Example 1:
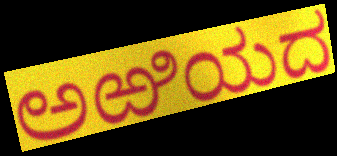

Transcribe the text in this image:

ಅಱಿಯದ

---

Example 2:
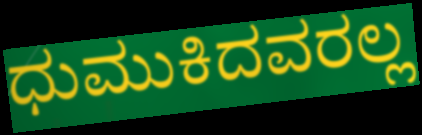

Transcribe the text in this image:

ಧುಮುಕಿದವರಲ್ಲ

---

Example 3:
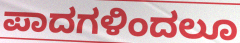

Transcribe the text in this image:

ಪಾದಗಳಿಂದಲೂ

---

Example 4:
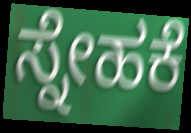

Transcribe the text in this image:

ಸ್ನೇಹಕೆ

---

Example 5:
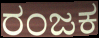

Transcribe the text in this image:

ರಂಜಕ